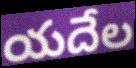
యదేల